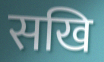
सखि